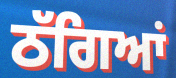
ਠੱਗਿਆਂ